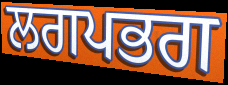
ਲਗਪਭਗ